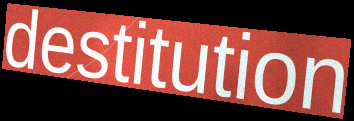
destitution